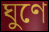
ঘুণে